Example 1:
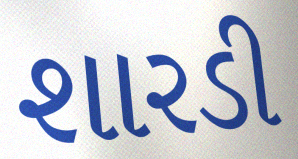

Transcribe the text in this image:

શારડી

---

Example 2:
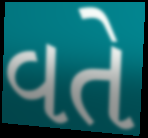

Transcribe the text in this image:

વતે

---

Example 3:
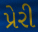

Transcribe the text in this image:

પ્રેરી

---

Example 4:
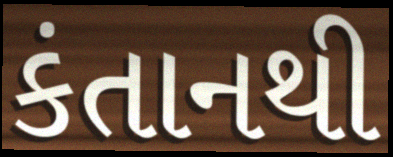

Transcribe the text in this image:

કંતાનથી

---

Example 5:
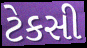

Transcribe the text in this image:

ટેકસી